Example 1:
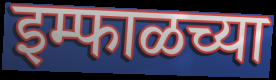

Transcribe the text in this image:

इम्फाळच्या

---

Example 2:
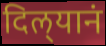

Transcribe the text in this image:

दिल्यानं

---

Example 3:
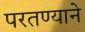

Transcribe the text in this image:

परतण्याने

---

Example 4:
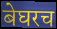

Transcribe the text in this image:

बेघरच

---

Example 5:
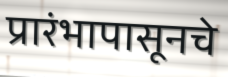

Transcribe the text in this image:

प्रारंभापासूनचे